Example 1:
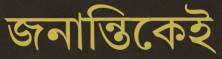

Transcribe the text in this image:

জনান্তিকেই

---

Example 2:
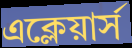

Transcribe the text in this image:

এক্লেয়ার্স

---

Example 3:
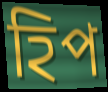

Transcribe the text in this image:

হিপ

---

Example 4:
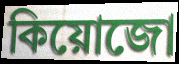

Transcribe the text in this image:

কিয়োজো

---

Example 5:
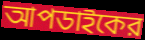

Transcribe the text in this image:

আপডাইকের